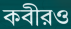
কবীরও